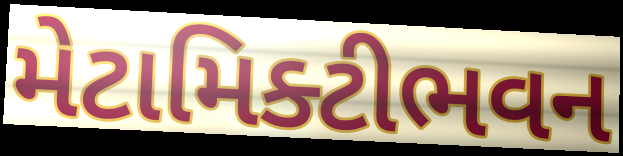
મેટામિક્ટીભવન